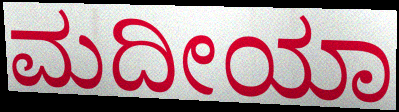
ಮದೀಯಾ